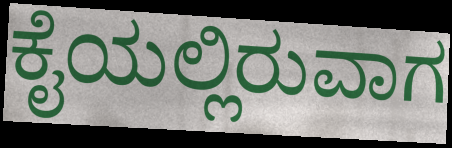
ಕೈಯಲ್ಲಿರುವಾಗ